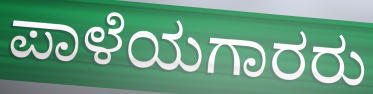
ಪಾಳೆಯಗಾರರು